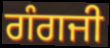
ਗੰਗਜੀ